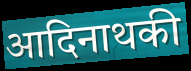
आदिनाथकी